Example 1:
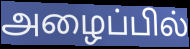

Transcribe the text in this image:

அழைப்பில்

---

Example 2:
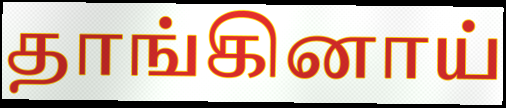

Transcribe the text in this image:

தாங்கினாய்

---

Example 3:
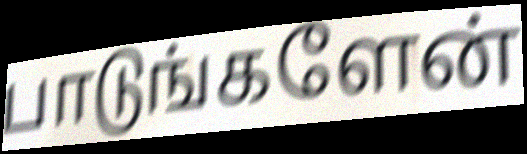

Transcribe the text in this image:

பாடுங்களேன்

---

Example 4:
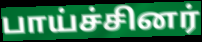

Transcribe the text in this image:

பாய்ச்சினர்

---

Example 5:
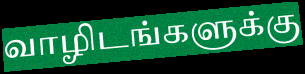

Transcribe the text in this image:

வாழிடங்களுக்கு